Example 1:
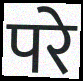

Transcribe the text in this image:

परे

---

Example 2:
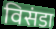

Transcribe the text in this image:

विसंडा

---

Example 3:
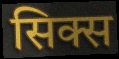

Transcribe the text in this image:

सिक्स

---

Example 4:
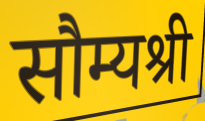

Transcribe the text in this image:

सौम्यश्री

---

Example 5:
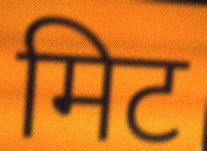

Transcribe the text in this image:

मिट